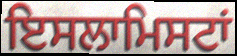
ਇਸਲਾਮਿਸਟਾਂ